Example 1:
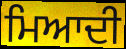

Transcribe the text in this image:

ਮਿਆਦੀ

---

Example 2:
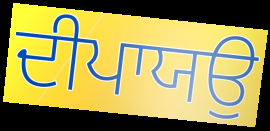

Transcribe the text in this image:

ਦੀਪਾਯਉ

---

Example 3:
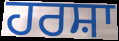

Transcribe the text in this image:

ਹਰਸ਼ਾ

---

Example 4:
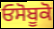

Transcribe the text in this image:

ਓਸੋਬੂਕੋ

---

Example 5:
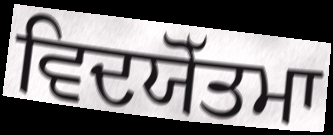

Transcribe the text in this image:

ਵਿਦਯੋੱਤਮਾ